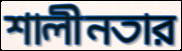
শালীনতার